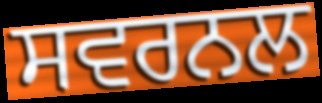
ਸਵਰਨਲ